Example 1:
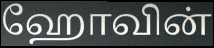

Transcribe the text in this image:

ஹோவின்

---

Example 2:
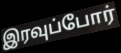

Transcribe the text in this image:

இரவுப்போர்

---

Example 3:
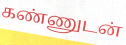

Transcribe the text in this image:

கண்ணுடன்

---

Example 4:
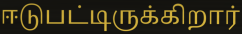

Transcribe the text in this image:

ஈடுபட்டிருக்கிறார்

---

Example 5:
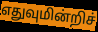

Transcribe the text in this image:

எதுவுமின்றிச்